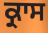
ਕ੍ਰਾਸ